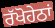
ਰੱਖੋਹੇਠਾਂ